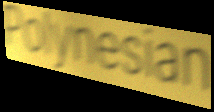
Polynesian